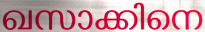
ഖസാക്കിനെ